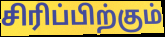
சிரிப்பிற்கும்